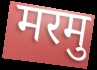
मरमु